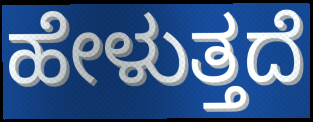
ಹೇಳುತ್ತದೆ